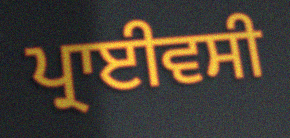
ਪ੍ਰਾਈਵਸੀ